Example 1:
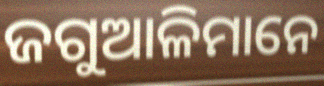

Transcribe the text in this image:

ଜଗୁଆଳିମାନେ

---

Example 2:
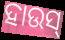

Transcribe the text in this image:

ହାଉସ୍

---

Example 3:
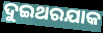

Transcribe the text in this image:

ଦୁଇଥରଯାକ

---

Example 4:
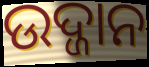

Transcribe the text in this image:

ଉଦ୍ଜାନ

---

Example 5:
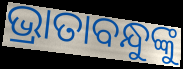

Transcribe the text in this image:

ଭ୍ରାତାବନ୍ଧୁଙ୍କୁ